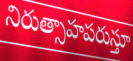
నిరుత్సాహపరుస్తూ